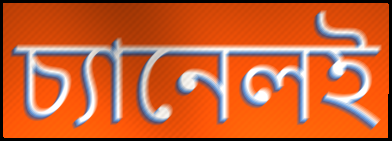
চ্যানেলই